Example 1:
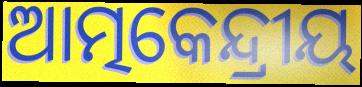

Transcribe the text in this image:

ଆତ୍ମକେନ୍ଦ୍ରୀୟ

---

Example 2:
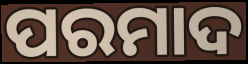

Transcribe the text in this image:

ପରମାଦ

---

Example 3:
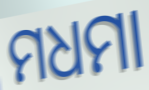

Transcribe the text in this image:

ମଧମା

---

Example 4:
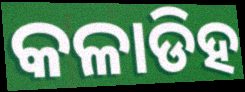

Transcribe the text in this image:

କଳାଡିହ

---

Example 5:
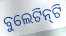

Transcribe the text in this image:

ବୁଲେଟିନ୍‍ଟି